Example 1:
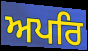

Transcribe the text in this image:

ਅਪਰਿ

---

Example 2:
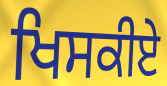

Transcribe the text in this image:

ਖਿਸਕੀਏ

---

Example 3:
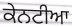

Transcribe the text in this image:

ਕੇਨਟੀਆ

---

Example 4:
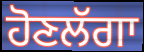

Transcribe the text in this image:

ਹੋਣਲੱਗਾ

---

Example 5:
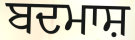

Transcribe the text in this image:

ਬਦਮਾਸ਼